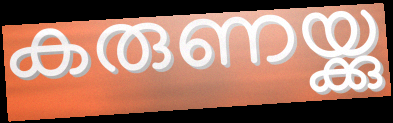
കരുണയ്ക്കു